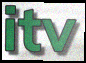
itv